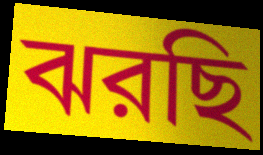
ঝরছি